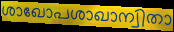
ശാഖോപശാഖാന്വിതാ